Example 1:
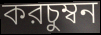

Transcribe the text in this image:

করচুম্বন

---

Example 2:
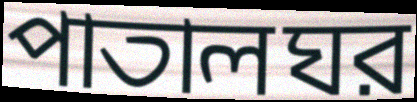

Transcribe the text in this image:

পাতালঘর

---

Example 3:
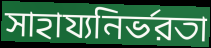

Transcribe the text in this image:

সাহায্যনির্ভরতা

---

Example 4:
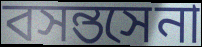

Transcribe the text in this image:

বসন্তসেনা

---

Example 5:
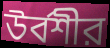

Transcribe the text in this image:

উর্বশীর